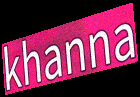
khanna